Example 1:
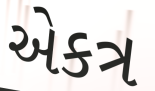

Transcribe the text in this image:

એકત્ર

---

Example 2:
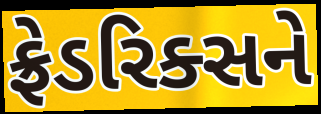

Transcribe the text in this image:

ફ્રેડરિક્સને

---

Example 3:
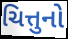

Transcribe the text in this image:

ચિત્તુનો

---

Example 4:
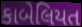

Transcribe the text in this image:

કાબેલિયત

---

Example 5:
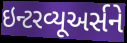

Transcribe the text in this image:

ઇન્ટરવ્યૂઅર્સને